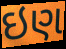
ઇણ